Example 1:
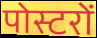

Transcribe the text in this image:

पोस्‍टरों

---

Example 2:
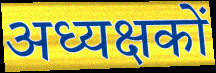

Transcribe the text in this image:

अध्यक्षकों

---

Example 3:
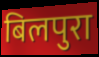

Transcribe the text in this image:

बिलपुरा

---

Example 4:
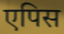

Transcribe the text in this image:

एपिस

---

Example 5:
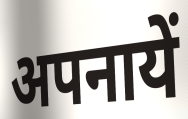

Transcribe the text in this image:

अपनायें